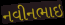
નવીનભાઇ